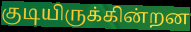
குடியிருக்கின்றன